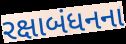
રક્ષાબંધનના